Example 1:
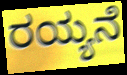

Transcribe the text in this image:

ರಯ್ಯನೆ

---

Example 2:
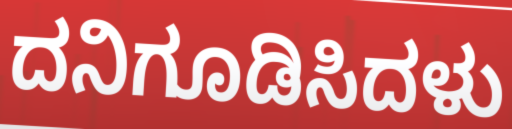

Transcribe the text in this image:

ದನಿಗೂಡಿಸಿದಳು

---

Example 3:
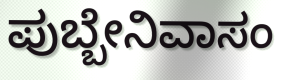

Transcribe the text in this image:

ಪುಬ್ಬೇನಿವಾಸಂ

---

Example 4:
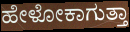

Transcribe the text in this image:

ಹೇಳೋಕಾಗುತ್ತಾ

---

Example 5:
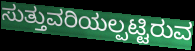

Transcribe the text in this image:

ಸುತ್ತುವರಿಯಲ್ಪಟ್ಟಿರುವ